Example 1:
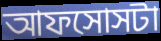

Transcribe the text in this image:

আফসোসটা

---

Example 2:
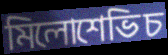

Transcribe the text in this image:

মিলোশেভিচ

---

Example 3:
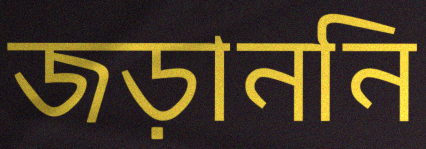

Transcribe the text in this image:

জড়াননি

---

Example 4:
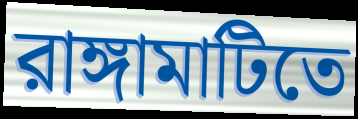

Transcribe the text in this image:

রাঙ্গামাটিতে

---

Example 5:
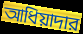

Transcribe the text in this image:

আধিয়াদার